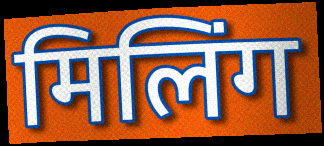
मिलिंग